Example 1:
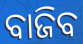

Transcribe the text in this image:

ବାଜିବ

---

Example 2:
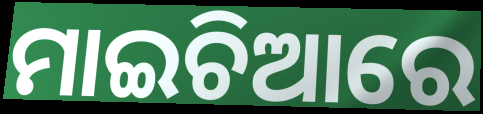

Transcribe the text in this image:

ମାଇଚିଆରେ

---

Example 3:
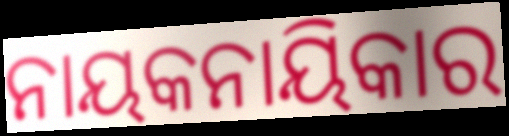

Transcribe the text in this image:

ନାୟକନାୟିକାର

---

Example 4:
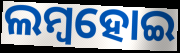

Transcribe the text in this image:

ଲମ୍ୱହୋଇ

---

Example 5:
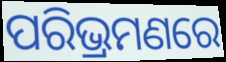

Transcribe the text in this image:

ପରିଭ୍ରମଣରେ